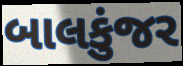
બાલકુંજર